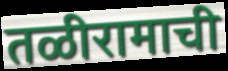
तळीरामाची